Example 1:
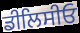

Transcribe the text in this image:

ਡੀਲਿਸੀਓ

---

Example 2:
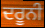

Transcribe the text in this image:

ਦਰੂਨੀ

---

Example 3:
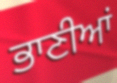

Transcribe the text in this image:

ਭਾਣੀਆਂ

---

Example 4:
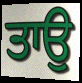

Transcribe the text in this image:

ਤਾਉ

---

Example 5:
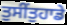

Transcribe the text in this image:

ਤੁਸੀਂਤੁਹਾਡੇ